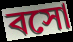
বসো